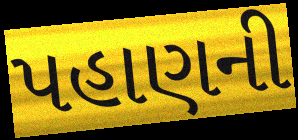
પહાણની